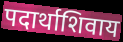
पदार्थाशिवाय